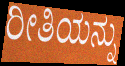
ರೀತಿಯನ್ನು